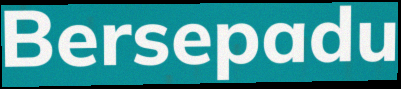
Bersepadu